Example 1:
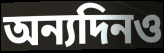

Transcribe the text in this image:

অন্যদিনও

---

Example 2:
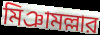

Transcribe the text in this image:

মিঞামল্লার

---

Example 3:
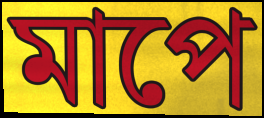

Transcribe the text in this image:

মাপে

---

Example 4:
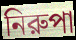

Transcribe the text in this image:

নিরুপা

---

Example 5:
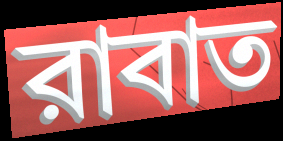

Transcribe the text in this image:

রাবাত